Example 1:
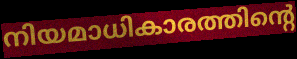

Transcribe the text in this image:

നിയമാധികാരത്തിന്റെ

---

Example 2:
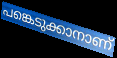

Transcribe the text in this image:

പങ്കെടുക്കാനാണ്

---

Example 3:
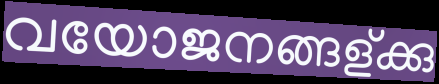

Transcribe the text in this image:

വയോജനങ്ങള്ക്കു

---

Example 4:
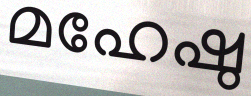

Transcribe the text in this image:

മഹേഷു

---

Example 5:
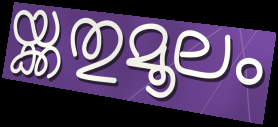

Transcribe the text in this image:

യ്ക്കതുമൂലം